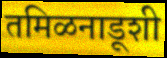
तमिळनाडूशी